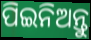
ପିଇନିଅନ୍ତୁ